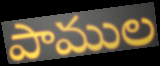
పాముల